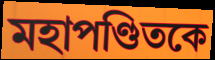
মহাপণ্ডিতকে